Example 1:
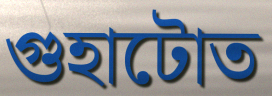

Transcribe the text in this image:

গুহাটোত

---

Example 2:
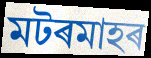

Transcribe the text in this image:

মটৰমাহৰ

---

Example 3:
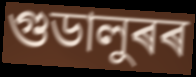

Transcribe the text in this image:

গুডালুৰৰ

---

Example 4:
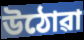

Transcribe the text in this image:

উঠোৱা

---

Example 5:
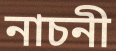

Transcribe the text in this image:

নাচনী